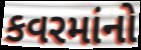
કવરમાંનો